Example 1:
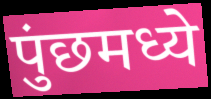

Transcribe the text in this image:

पुंछमध्ये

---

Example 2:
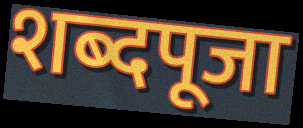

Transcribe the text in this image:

शब्दपूजा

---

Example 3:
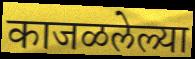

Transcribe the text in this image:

काजळलेल्या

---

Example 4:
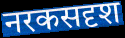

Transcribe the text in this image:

नरकसदृश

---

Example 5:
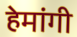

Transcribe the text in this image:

हेमांगी